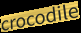
crocodile